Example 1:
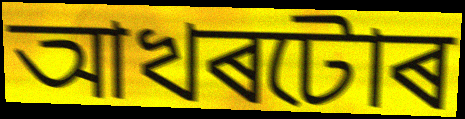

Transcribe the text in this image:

আখৰটোৰ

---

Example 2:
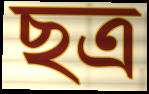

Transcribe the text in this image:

ছত্ৰ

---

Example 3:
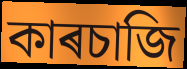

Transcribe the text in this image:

কাৰচাজি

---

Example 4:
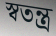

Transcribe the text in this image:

স্ৱতন্ত্ৰ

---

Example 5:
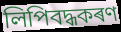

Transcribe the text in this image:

লিপিবদ্ধকৰণ